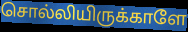
சொல்லியிருக்காளே